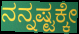
ನನ್ನಷ್ಟಕ್ಕೇ